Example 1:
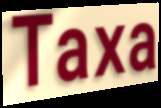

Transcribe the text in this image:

Taxa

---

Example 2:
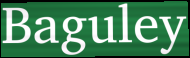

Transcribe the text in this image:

Baguley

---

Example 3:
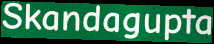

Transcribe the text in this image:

Skandagupta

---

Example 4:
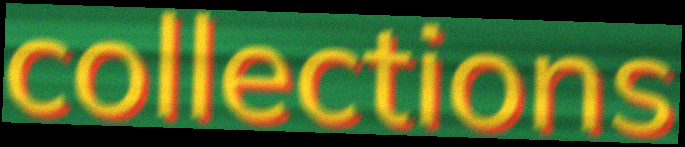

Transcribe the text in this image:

collections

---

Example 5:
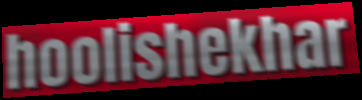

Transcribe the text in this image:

hoolishekhar